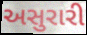
અસુરારી